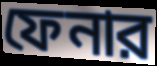
ফেনার